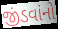
જીંડવાંનો